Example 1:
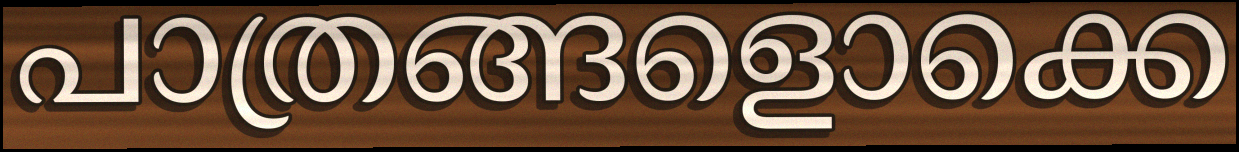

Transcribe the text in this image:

പാത്രങ്ങളൊക്കെ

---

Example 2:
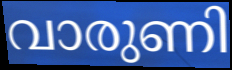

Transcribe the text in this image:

വാരുണി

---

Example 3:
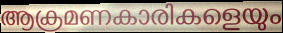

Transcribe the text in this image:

ആക്രമണകാരികളെയും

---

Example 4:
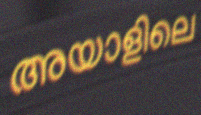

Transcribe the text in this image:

അയാളിലെ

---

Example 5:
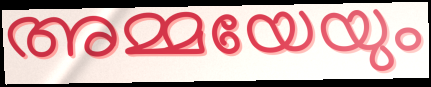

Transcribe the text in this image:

അമ്മയേയും